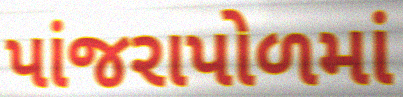
પાંજરાપોળમાં